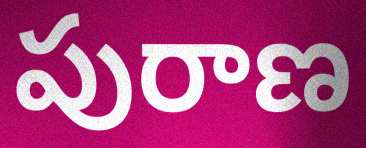
పురాణ